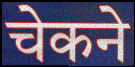
चेकने